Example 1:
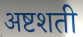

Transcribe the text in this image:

अष्टशती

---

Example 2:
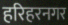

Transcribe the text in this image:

हरिहरनगर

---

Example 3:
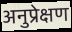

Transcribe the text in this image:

अनुप्रेक्षण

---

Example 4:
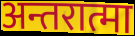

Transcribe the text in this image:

अन्तरात्मा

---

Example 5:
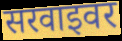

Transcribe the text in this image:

सरवाइवर